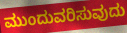
ಮುಂದುವರಿಸುವುದು